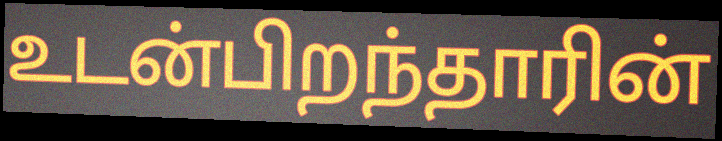
உடன்பிறந்தாரின்